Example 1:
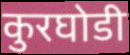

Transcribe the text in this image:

कुरघोडी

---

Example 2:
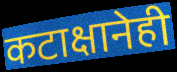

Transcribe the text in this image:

कटाक्षानेही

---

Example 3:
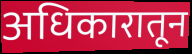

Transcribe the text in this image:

अधिकारातून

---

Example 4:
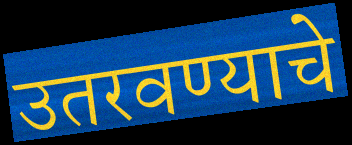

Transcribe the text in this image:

उतरवण्याचे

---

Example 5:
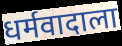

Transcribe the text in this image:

धर्मवादाला